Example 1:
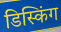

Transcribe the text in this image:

डिस्किंग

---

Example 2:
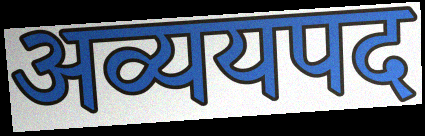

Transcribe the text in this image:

अव्ययपद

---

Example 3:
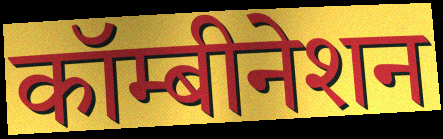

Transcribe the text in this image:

कॉम्बीनेशन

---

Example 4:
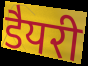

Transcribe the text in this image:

डैयरी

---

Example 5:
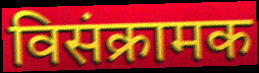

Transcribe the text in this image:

विसंक्रामक